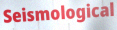
Seismological